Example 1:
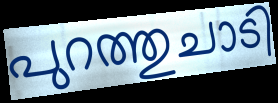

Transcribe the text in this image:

പുറത്തുചാടി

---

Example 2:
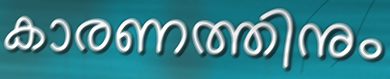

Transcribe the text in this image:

കാരണത്തിനും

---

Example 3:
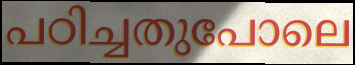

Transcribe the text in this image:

പഠിച്ചതുപോലെ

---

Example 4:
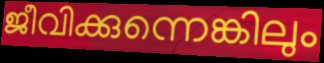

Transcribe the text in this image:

ജീവിക്കുന്നെങ്കിലും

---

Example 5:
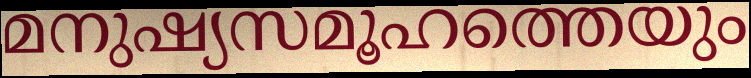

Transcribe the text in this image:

മനുഷ്യസമൂഹത്തെയും